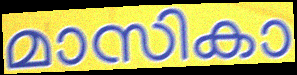
മാസികാ